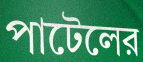
পাটেলের